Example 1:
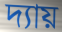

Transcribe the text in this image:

দ্যায়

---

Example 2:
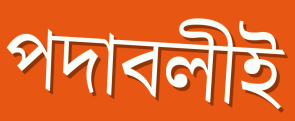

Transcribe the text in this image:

পদাবলীই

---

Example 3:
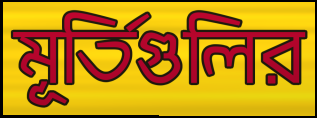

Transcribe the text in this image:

মূর্তিগুলির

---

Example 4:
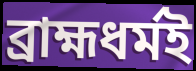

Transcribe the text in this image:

ব্রাহ্মধর্মই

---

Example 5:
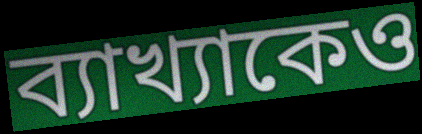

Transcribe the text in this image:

ব্যাখ্যাকেও